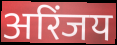
अरिंजय